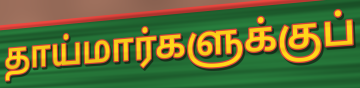
தாய்மார்களுக்குப்